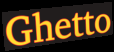
Ghetto